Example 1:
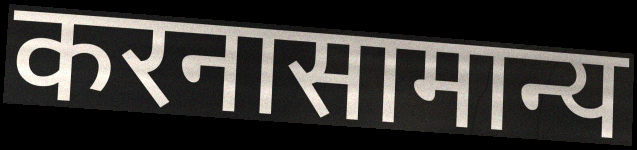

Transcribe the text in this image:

करनासामान्य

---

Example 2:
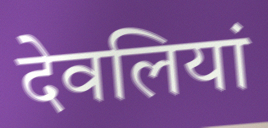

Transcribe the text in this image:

देवलियां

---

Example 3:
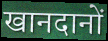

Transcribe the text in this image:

खानदानों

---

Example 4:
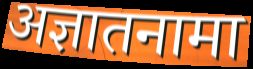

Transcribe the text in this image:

अज्ञातनामा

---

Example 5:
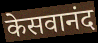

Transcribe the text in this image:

केसवानंद